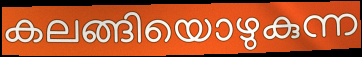
കലങ്ങിയൊഴുകുന്ന